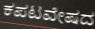
ಕಪಟವೇಷದ